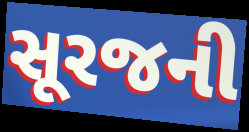
સૂરજની